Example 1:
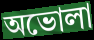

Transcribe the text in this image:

অভোলা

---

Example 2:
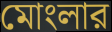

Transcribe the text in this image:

মোংলার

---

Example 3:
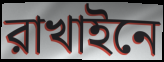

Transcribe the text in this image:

রাখাইনে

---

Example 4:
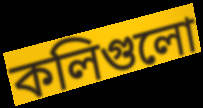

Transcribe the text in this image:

কলিগুলো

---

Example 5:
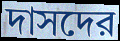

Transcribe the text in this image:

দাসদের